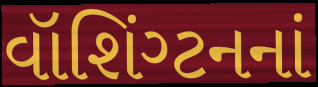
વૉશિંગ્ટનનાં